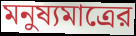
মনুষ্যমাত্রের